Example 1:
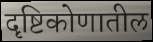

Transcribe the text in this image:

दृष्टिकोणातील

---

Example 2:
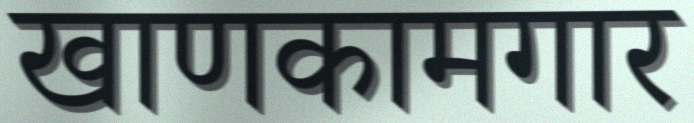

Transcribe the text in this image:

खाणकामगार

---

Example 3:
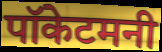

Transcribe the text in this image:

पॉकेटमनी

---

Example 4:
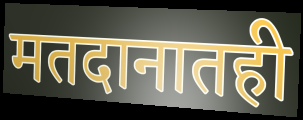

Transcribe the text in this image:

मतदानातही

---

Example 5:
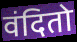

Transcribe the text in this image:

वंदितो